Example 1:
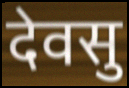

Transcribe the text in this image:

देवसु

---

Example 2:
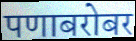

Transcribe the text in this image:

पणाबरोबर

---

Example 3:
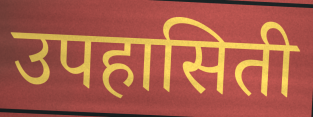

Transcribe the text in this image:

उपहासिती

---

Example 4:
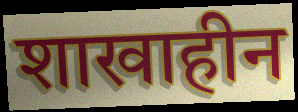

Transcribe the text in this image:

शाखाहीन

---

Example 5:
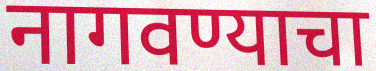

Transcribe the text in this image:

नागवण्याचा